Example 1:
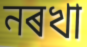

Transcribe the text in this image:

নৰখা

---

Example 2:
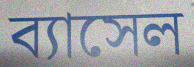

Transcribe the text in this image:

ব্যাসেল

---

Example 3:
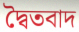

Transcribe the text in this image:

দ্বৈতবাদ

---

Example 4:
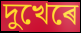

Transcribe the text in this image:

দুখেৰে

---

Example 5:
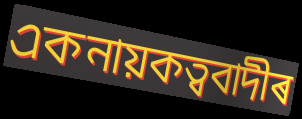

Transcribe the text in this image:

একনায়কত্ববাদীৰ